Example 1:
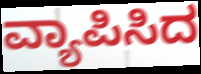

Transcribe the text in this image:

ವ್ಯಾಪಿಸಿದ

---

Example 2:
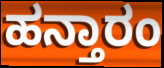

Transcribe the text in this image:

ಹನ್ತಾರಂ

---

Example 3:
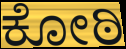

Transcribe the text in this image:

ಕೋಠಿ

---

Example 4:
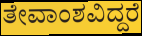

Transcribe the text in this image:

ತೇವಾಂಶವಿದ್ದರೆ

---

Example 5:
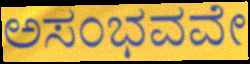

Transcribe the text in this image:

ಅಸಂಭವವೇ